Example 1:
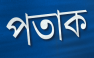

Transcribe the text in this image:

পতাক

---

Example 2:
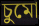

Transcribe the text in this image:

চুমো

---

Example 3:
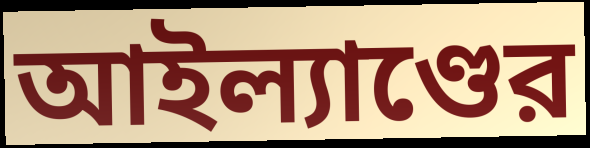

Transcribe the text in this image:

আইল্যাণ্ডের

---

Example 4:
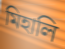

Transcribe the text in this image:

মিহালি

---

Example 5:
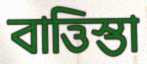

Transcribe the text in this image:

বাত্তিস্তা